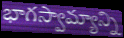
భాగస్వామ్యాన్ని